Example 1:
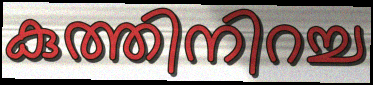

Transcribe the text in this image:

കുത്തിനിറച്ച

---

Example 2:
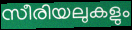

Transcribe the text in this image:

സീരിയലുകളും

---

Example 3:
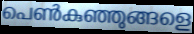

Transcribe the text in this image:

പെൺകുഞ്ഞുങ്ങളെ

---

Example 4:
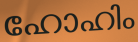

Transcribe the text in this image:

ഹോഹിം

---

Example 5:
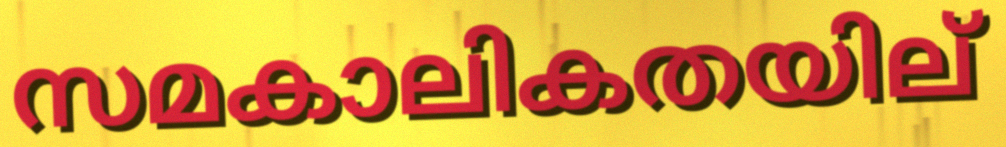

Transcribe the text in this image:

സമകാലികതയില്